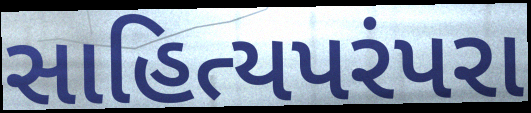
સાહિત્યપરંપરા